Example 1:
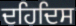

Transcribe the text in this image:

ਦਹਿਦਿਸ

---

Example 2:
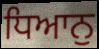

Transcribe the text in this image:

ਧਿਆਨੁ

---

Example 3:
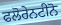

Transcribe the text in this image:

ਫਲੋਰੇਨਟੀਨੋ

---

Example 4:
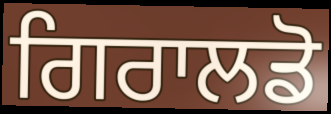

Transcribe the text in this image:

ਗਿਰਾਲਡੋ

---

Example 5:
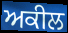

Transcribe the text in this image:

ਅਕੀਲ